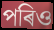
পৰিও